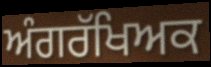
ਅੰਗਰੱਖਿਅਕ